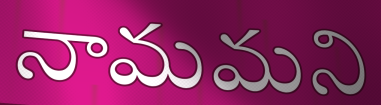
నామమని